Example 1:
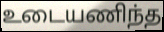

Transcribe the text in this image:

உடையணிந்த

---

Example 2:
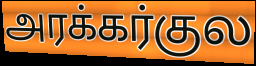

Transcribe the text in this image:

அரக்கர்குல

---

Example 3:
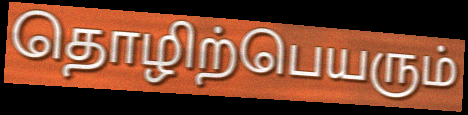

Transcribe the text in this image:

தொழிற்பெயரும்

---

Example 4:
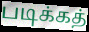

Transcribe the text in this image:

படிக்கத்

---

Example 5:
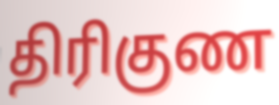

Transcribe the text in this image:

திரிகுண